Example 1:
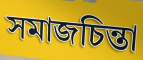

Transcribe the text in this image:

সমাজচিন্তা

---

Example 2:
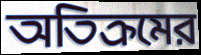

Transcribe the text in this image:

অতিক্রমের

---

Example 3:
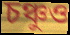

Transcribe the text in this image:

চঞ্চুও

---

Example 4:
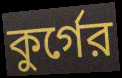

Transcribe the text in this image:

কুর্গের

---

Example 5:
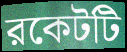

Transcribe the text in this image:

রকেটটি